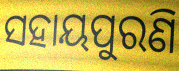
ସହାୟପୁରଣି